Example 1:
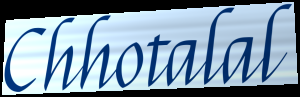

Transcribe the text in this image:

Chhotalal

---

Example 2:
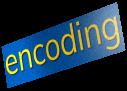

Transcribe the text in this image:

encoding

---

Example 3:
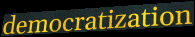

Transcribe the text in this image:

democratization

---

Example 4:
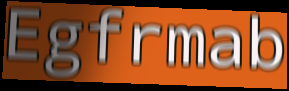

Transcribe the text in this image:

Egfrmab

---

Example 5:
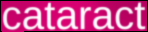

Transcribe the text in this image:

cataract